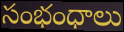
సంభంధాలు